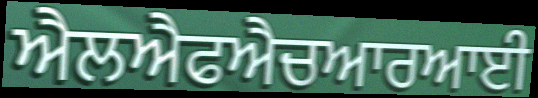
ਐਲਐਫਐਚਆਰਆਈ